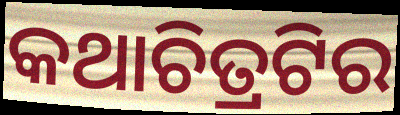
କଥାଚିତ୍ରଟିର